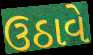
ઉઠાવે